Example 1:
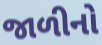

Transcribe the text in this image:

જાળીનો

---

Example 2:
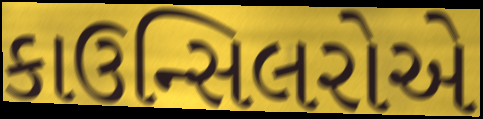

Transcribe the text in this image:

કાઉન્સિલરોએ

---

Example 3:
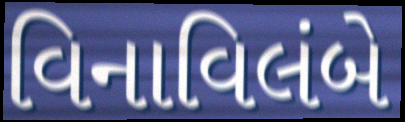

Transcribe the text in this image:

વિનાવિલંબે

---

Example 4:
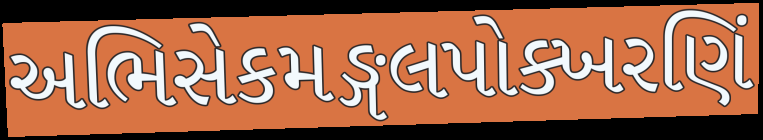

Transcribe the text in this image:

અભિસેકમઙ્ગલપોક્ખરણિં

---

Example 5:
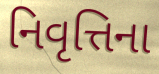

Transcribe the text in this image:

નિવૃત્તિના